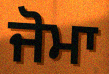
ਜੋਮਾ